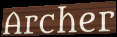
Archer